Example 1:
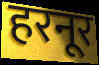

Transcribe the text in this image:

हरनूर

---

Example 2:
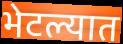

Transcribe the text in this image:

भेटल्यात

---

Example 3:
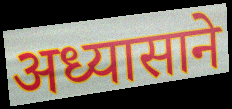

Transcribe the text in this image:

अध्यासाने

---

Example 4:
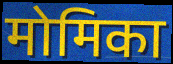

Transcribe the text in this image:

मोमिका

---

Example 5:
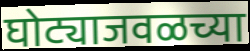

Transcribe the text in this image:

घोट्याजवळच्या